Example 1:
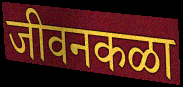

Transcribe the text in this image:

जीवनकळा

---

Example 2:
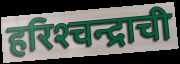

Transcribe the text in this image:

हरिश्चन्द्राची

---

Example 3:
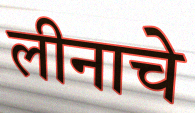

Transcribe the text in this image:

लीनाचे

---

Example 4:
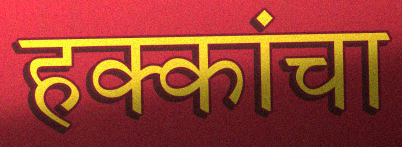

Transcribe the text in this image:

हक्कांचा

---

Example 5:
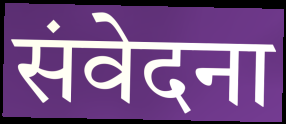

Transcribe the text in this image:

संवेदना